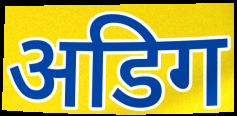
अडिग